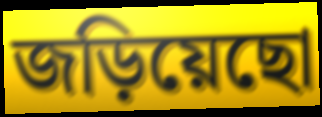
জড়িয়েছো